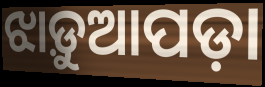
ଝାଡ଼ୁଆପଡ଼ା